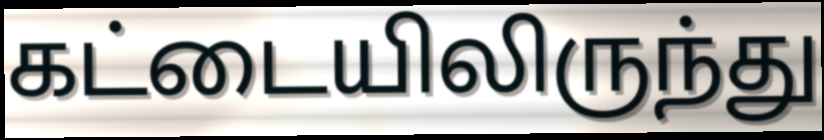
கட்டையிலிருந்து